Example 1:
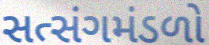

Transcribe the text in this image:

સત્સંગમંડળો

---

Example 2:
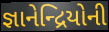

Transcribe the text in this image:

જ્ઞાનેન્દ્રિયોની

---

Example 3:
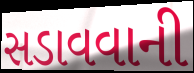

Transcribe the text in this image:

સડાવવાની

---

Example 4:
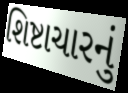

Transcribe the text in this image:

શિષ્ટાચારનું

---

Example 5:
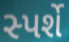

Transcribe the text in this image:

સ્પર્શે